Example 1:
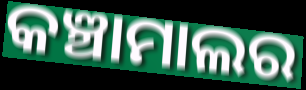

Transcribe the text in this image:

କଞ୍ଚାମାଲର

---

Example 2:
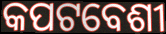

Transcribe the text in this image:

କପଟବେଶୀ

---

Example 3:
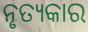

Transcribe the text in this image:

ନୃତ୍ୟକାର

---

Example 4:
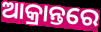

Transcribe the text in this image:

ଆକ୍ରାନ୍ତରେ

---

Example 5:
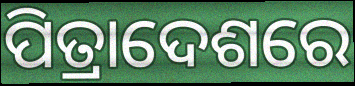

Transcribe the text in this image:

ପିତ୍ରାଦେଶରେ